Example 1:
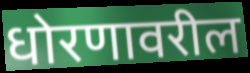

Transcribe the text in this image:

धोरणावरील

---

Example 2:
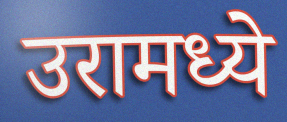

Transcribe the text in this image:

उरामध्ये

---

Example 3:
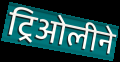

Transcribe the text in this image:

ट्रिओलीने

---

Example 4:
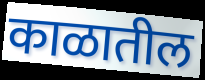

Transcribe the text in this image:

काळातील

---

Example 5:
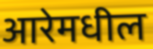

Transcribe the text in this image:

आरेमधील